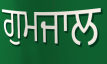
ਗੁਮਜਾਲ